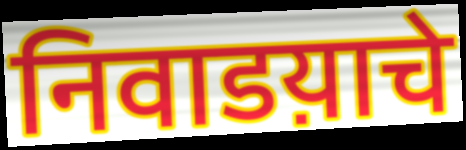
निवाडय़ाचे